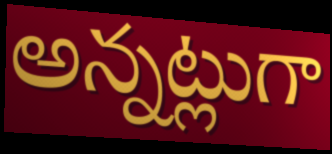
అన్నట్లుగా